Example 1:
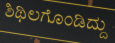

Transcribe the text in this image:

ಶಿಥಿಲಗೊಂಡಿದ್ದು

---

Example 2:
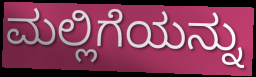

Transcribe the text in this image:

ಮಲ್ಲಿಗೆಯನ್ನು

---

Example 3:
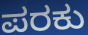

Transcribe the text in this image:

ಪರಕು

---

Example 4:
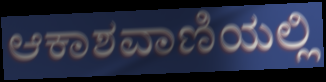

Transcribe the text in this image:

ಆಕಾಶವಾಣಿಯಲ್ಲಿ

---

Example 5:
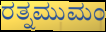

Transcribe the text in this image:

ರತ್ನಮುಮಂ